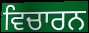
ਵਿਚਾਰਨ